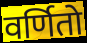
वर्णितो